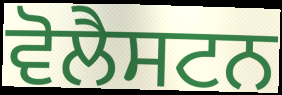
ਵੋਲੈਸਟਨ